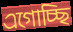
এগোচ্ছি